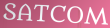
SATCOM